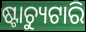
ଷ୍ଟାଚ୍ୟୁଟାରି